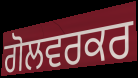
ਗੋਲਵਰਕਰ